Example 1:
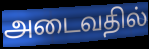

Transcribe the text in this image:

அடைவதில்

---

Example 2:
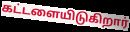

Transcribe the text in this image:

கட்டளையிடுகிறார்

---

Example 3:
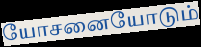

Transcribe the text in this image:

யோசனையோடும்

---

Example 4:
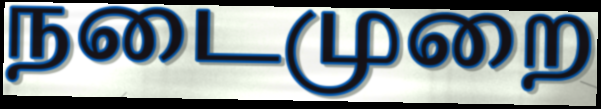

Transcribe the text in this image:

நடைமுறை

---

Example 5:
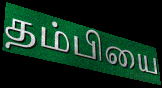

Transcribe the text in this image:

தம்பியை